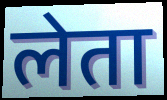
लेता